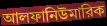
আলফানিউমারিক